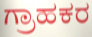
ಗ್ರಾಹಕರ